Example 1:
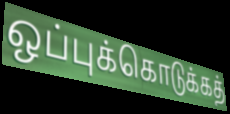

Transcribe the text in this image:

ஒப்புக்கொடுக்கத்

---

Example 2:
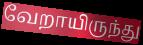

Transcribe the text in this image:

வேறாயிருந்து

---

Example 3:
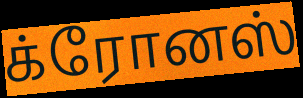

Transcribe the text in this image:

க்ரோனஸ்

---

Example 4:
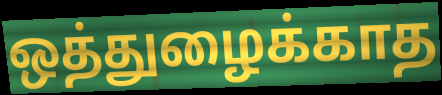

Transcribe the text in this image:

ஒத்துழைக்காத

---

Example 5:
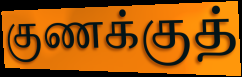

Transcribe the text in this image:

குணக்குத்